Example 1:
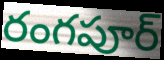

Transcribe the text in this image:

రంగపూర్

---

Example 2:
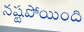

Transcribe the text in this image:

నష్టపోయింది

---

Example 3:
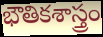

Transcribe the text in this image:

భౌతికశాస్త్రం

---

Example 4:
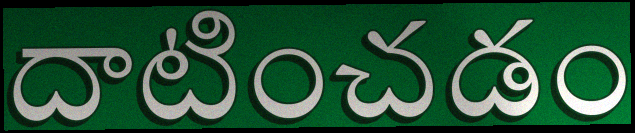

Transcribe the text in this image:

దాటించడం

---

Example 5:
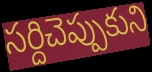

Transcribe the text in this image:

సర్దిచెప్పుకుని